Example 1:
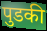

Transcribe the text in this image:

पुडकी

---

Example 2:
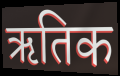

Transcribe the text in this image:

ऋतिक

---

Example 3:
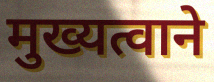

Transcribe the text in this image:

मुख्यत्वाने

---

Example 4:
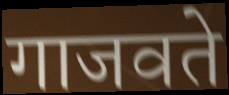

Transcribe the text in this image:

गाजवते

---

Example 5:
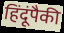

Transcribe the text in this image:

हिंदूंपैकी